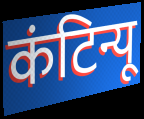
कंटिन्यू